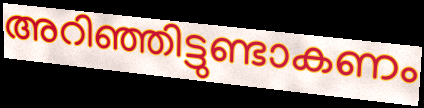
അറിഞ്ഞിട്ടുണ്ടാകണം